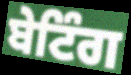
ਬੇਟਿੰਗ